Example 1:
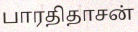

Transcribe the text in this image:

பாரதிதாசன்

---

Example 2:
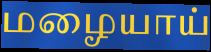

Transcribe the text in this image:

மழையாய்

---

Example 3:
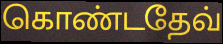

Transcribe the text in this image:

கொண்டதேவ்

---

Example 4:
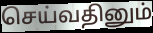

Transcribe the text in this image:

செய்வதினும்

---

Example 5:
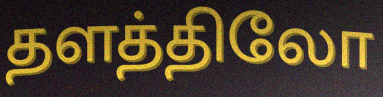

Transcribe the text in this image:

தளத்திலோ